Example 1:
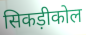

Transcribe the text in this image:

सिकड़ीकोल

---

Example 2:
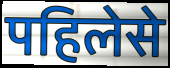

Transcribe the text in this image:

पहिलेसे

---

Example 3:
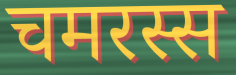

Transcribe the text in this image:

चमरस्स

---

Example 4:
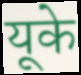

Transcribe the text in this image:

यूके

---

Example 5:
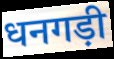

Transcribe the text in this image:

धनगड़ी